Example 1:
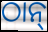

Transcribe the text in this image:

ଠାନ୍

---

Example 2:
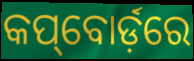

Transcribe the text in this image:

କପ୍‌ବୋର୍ଡ଼ରେ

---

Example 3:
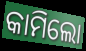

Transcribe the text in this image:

କାମିଲୋ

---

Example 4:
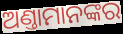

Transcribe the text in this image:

ଅଣ୍ତାମାନଙ୍କର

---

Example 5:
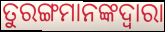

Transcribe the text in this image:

ତୁରଙ୍ଗମାନଙ୍କଦ୍ୱାରା